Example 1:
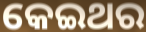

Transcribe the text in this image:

କେଇଥର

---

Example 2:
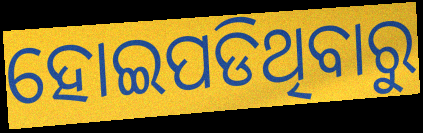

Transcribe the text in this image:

ହୋଇପଡିଥିବାରୁ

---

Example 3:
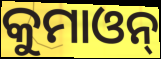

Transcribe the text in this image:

କୁମାଓନ୍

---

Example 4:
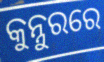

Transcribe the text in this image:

କୁନ୍ନୁରରେ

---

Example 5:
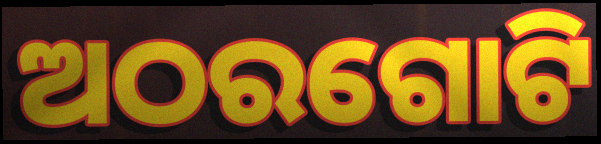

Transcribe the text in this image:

ଅଠରଗୋଟି